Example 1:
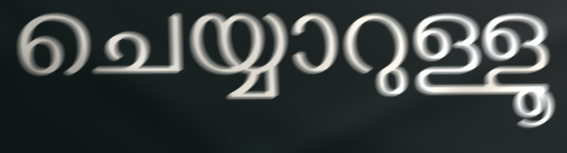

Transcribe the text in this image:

ചെയ്യാറുള്ളൂ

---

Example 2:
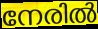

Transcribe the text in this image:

നേരിൽ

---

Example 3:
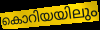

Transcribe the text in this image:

കൊറിയയിലും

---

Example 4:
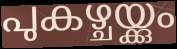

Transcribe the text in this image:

പുകഴ്ചയ്ക്കും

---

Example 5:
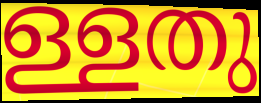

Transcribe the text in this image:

ള്ളതു